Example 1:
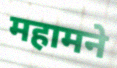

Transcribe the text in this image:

महामने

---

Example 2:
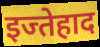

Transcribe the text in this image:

इज्तेहाद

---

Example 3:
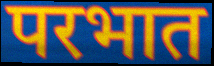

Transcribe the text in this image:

परभात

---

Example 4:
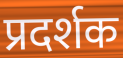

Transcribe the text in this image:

प्रदर्शक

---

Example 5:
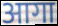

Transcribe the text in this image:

आगा